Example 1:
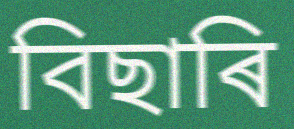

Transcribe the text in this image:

বিছাৰি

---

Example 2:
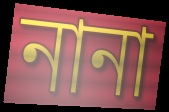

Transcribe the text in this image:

নানা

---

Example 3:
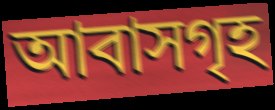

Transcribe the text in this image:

আবাসগৃহ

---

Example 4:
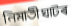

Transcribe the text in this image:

নিমাতীঘাটৰ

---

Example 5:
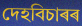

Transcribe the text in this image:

দেহবিচাৰৰ